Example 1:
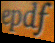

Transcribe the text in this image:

epdf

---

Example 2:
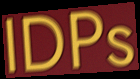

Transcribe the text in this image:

IDPs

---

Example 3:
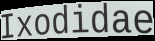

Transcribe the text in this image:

Ixodidae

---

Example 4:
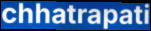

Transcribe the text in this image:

chhatrapati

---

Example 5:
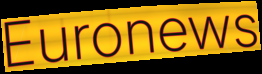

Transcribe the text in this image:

Euronews